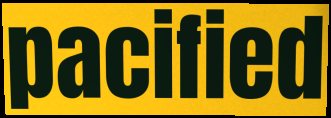
pacified